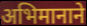
अभिमानाने